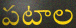
పటాల